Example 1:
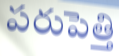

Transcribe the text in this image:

పరుపెత్తి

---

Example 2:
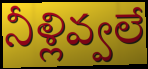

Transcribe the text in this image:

నీళ్లివ్వలే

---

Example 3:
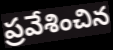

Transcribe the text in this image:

ప్రవేశించిన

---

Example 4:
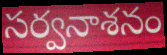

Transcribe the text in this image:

సర్వనాశనం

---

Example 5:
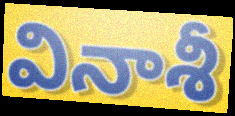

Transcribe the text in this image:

వినాశీ